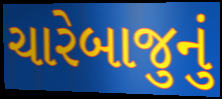
ચારેબાજુનું